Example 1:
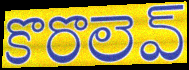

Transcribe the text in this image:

కొరొలెవ్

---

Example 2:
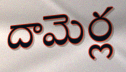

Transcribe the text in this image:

దామెర్ల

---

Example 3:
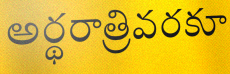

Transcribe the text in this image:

అర్థరాత్రివరకూ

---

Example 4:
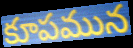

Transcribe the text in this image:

కూపమున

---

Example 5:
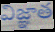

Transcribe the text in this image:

విజ్ఞాత